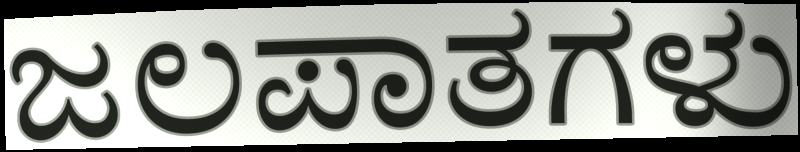
ಜಲಪಾತಗಳು